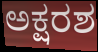
ಅಕ್ಷರಶ